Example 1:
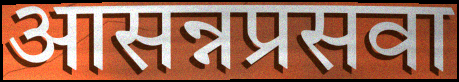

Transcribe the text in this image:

आसन्नप्रसवा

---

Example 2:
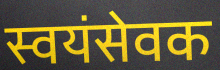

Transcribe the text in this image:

स्वयंसेवक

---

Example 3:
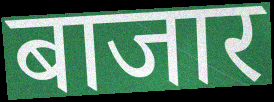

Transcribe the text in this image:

बाजार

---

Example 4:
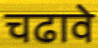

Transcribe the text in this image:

चढावे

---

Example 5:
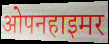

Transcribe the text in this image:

ओपनहाइमर